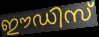
ഈഡിസ്